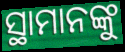
ସ୍ଥାମାନଙ୍କୁ